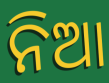
ନିଆ